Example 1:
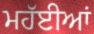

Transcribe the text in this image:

ਮਹੱਈਆਂ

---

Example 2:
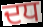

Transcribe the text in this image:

ਦਧ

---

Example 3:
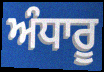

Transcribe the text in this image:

ਅੰਧਾਰੂ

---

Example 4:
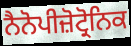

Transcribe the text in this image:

ਨੈਨੋਪੀਜ਼ੋਟ੍ਰੋਨਿਕ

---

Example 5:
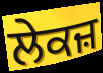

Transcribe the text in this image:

ਲੇਕਜ਼